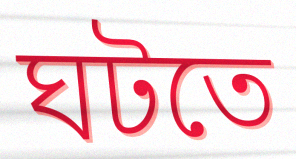
ঘটতে